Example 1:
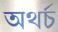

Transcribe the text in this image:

অথৰ্চ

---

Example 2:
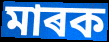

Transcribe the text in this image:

মাৰক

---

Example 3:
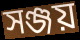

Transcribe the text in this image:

সঞ্জয়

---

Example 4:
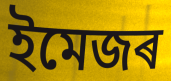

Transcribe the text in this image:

ইমেজৰ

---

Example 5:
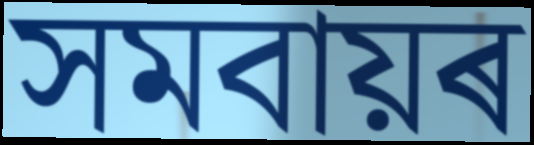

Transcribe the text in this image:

সমবায়ৰ